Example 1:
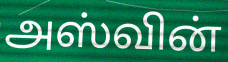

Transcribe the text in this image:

அஸ்வின்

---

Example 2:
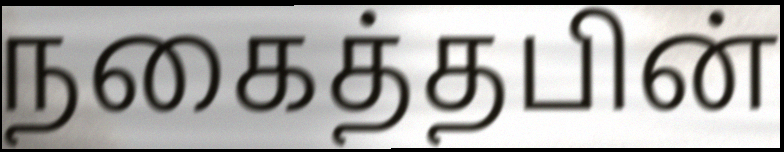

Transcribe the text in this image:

நகைத்தபின்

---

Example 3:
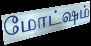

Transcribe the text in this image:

மோட்ஷம்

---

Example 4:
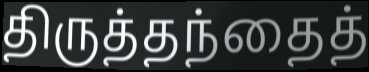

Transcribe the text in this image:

திருத்தந்தைத்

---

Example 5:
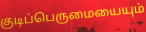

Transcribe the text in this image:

குடிப்பெருமையையும்